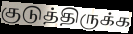
குடுத்திருக்க